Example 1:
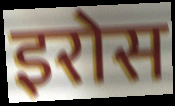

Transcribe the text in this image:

इरोस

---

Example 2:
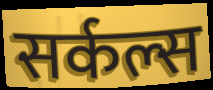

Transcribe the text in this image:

सर्कल्‍स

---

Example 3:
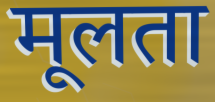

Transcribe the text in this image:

मूलता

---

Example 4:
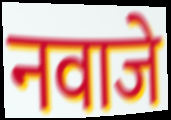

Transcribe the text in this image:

नवाजे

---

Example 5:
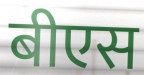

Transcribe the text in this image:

बीएस